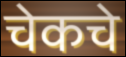
चेकचे